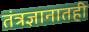
तंत्रज्ञानातही